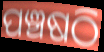
ପଞ୍ଚଷଠି